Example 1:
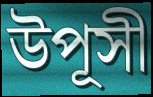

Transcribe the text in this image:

উপূসী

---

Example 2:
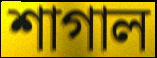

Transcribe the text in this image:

শাগাল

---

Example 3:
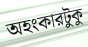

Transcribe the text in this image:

অহংকারটুকু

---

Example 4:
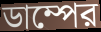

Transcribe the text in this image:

ডাম্পের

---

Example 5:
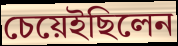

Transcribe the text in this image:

চেয়েইছিলেন